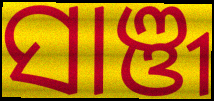
ସାଞ୍ଜ